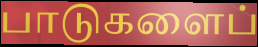
பாடுகளைப்